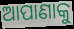
ଆପାଣାକୁ